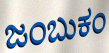
ಜಂಬುಕಂ